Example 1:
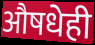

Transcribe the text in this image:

औषधेही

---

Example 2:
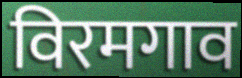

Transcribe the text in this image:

विरमगाव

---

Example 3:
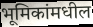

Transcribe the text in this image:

भूमिकांमधील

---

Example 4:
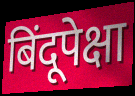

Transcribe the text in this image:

बिंदूपेक्षा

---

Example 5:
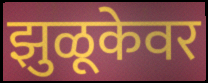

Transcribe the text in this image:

झुळूकेवर